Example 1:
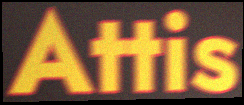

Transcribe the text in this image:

Attis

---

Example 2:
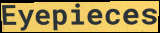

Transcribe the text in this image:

Eyepieces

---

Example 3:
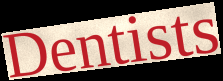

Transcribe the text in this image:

Dentists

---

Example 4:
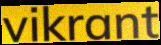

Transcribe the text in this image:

vikrant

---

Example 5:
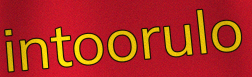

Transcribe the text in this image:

intoorulo